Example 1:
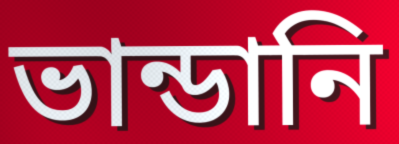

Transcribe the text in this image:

ভান্ডানি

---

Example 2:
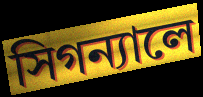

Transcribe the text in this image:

সিগন্যালে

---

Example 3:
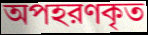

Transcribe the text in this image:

অপহরণকৃত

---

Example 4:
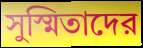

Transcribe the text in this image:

সুস্মিতাদের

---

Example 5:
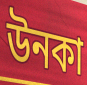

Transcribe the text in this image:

উনকা